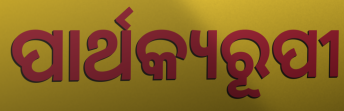
ପାର୍ଥକ୍ୟରୂପୀ